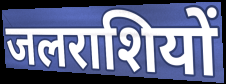
जलराशियों